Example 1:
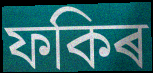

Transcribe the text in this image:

ফকিৰ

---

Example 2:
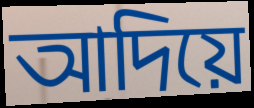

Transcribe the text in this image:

আদিয়ে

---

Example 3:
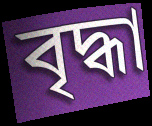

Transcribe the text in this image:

বৃদ্ধা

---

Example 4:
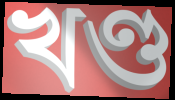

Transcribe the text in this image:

খণ্ড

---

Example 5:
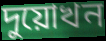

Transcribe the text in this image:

দুয়োখন